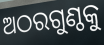
ଅଠରଗୁଣ୍ଠକୁ